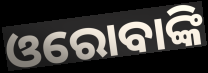
ଓରୋବାଙ୍କି